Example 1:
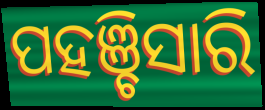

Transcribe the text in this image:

ପହଞ୍ଚିସାରି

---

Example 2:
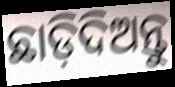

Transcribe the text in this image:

ଛାଡ଼ିଦିଅନ୍ତୁ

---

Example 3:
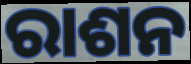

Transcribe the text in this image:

ରାଶନ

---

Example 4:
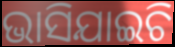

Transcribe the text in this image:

ଭାସିଯାଇଚି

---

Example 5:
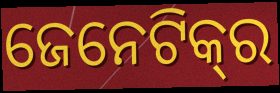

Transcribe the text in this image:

ଜେନେଟିକ୍‌ର